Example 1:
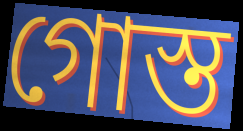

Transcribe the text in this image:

গোস্ত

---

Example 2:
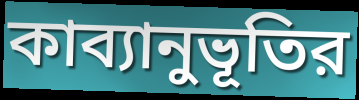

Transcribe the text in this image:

কাব্যানুভূতির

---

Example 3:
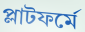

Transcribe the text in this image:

প্লাটফর্মে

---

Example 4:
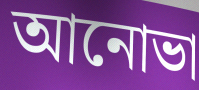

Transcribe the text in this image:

আনোভা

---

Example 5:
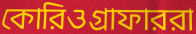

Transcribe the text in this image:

কোরিওগ্রাফাররা